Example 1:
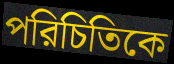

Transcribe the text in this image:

পরিচিতিকে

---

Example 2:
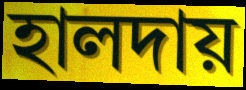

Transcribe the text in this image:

হালদায়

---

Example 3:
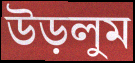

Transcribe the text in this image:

উড়লুম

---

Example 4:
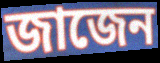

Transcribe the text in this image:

জাজেন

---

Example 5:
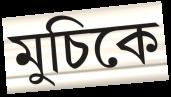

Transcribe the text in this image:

মুচিকে